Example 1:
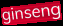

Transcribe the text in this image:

ginseng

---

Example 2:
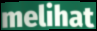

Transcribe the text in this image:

melihat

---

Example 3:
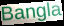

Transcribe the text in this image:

Bangla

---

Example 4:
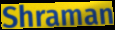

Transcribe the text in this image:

Shraman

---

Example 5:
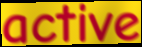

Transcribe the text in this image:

active